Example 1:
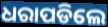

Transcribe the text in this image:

ଧରାପଡିଲେ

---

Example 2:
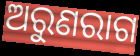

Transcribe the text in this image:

ଅରୁଣରାଗ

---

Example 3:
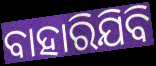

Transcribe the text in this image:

ବାହାରିଯିବି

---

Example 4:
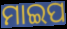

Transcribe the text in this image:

ମାଇପ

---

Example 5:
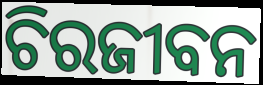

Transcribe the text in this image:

ଚିରଜୀବନ